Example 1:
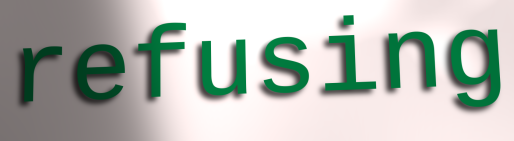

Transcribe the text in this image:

refusing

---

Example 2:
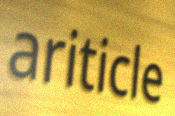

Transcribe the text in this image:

ariticle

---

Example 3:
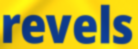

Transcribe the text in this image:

revels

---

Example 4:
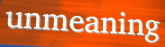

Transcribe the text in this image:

unmeaning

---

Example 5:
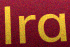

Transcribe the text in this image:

Ira